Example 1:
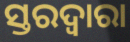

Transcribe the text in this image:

ସ୍ତରଦ୍ୱାରା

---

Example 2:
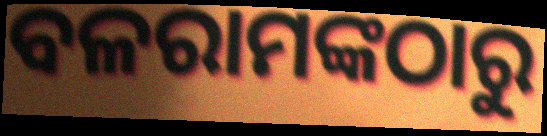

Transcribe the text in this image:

ବଳରାମଙ୍କଠାରୁ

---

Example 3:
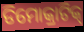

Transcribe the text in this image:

ଡିମୋକ୍ରାଟିକ୍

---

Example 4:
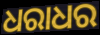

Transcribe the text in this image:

ଧରାଧର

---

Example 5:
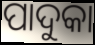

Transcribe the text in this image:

ପାଦୁକା